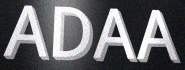
ADAA